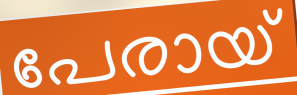
പേരായ്